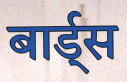
बार्ड्स